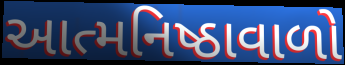
આત્મનિષ્ઠાવાળો